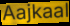
Aajkaal